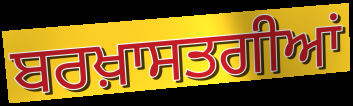
ਬਰਖ਼ਾਸਤਗੀਆਂ